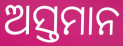
ଅସ୍ତମାନ